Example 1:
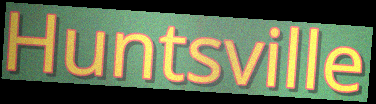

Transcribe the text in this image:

Huntsville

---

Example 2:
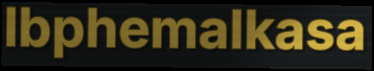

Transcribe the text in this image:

lbphemalkasa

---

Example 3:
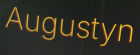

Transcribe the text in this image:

Augustyn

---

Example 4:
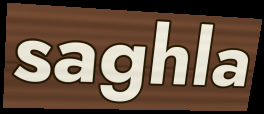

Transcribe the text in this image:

saghla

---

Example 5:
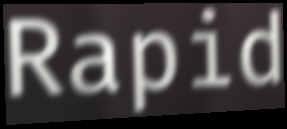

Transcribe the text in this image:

Rapid